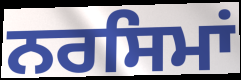
ਨਰਸਿਮਾਂ